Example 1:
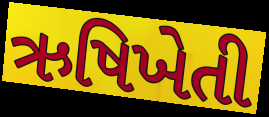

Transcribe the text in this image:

ઋષિખેતી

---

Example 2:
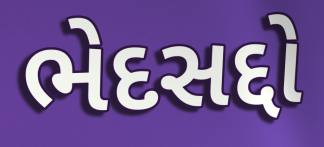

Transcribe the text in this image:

ભેદસદ્દો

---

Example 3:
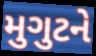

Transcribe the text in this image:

મુગુટને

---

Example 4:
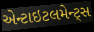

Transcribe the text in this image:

એન્ટાઇટલમેન્ટ્સ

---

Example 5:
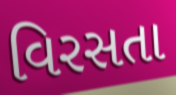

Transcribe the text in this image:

વિરસતા